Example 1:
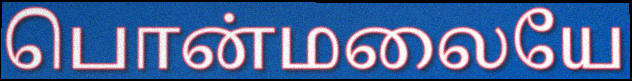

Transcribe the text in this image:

பொன்மலையே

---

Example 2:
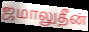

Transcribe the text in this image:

ஜமாலுதீன்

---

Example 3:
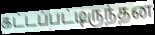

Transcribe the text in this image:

கட்டப்பட்டிருந்தன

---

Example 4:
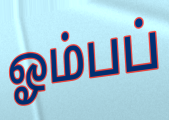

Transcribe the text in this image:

ஓம்பப்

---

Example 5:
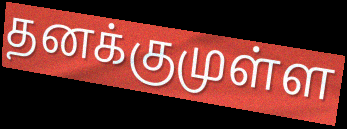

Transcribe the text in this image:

தனக்குமுள்ள